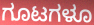
ಗೂಟಗಳೂ